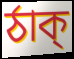
ঠাক্